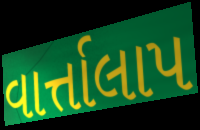
વાર્ત્તાલાપ